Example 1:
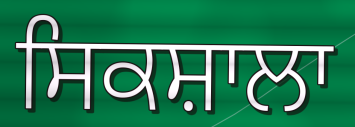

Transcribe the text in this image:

ਸਿਕਸ਼ਾਲਾ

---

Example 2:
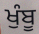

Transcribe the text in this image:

ਖੁੰਬੂ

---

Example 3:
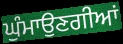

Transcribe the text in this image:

ਘੁੰਮਾਉਣਗੀਆਂ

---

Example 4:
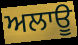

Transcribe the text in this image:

ਅਲਾਊ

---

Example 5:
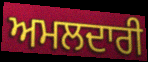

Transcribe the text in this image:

ਅਮਲਦਾਰੀ